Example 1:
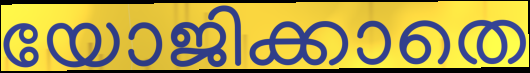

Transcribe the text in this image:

യോജിക്കാതെ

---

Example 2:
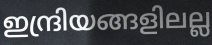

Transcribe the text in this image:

ഇന്ദ്രിയങ്ങളിലല്ല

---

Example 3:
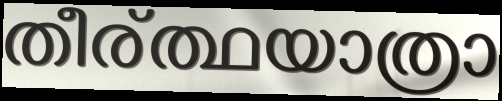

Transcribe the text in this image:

തീര്ത്ഥയാത്രാ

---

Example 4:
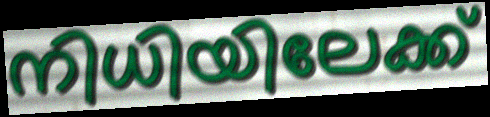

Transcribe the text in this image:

നിധിയിലേക്ക്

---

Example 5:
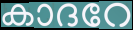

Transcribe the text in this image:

കാദറേ